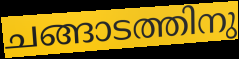
ചങ്ങാടത്തിനു